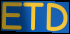
ETD